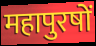
महापुरषों